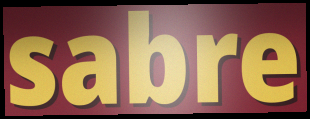
sabre